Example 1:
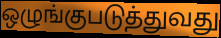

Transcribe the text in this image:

ஒழுங்குபடுத்துவது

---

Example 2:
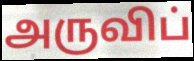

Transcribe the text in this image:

அருவிப்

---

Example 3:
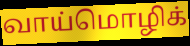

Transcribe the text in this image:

வாய்மொழிக்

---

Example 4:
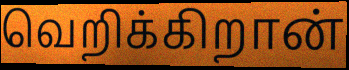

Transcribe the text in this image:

வெறிக்கிறான்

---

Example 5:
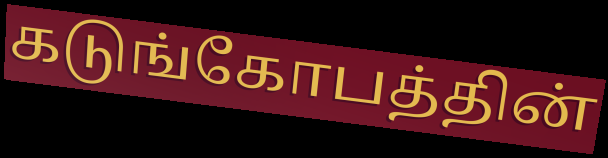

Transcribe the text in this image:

கடுங்கோபத்தின்